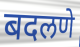
बदलणे